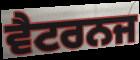
ਵੈਟਰਨਜ